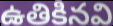
ఉతికినవి